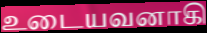
உடையவனாகி